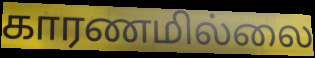
காரணமில்லை